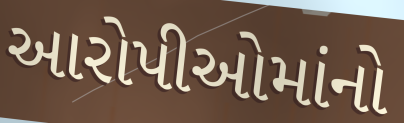
આરોપીઓમાંનો